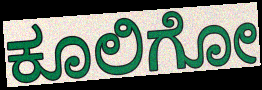
ಕೂಲಿಗೋ